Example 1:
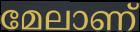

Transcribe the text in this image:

മേലാണ്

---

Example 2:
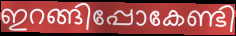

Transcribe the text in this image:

ഇറങ്ങിപ്പോകേണ്ടി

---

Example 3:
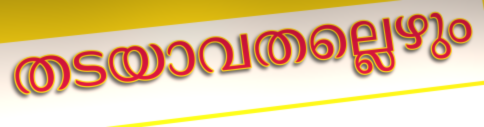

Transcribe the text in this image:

തടയാവതല്ലെഴും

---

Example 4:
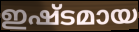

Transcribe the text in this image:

ഇഷ്ടമായ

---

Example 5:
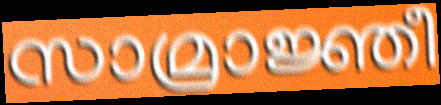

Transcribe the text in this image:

സാമ്രാജ്ഞീ